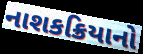
નાશકક્રિયાનો